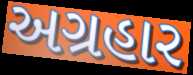
અગ્રહાર